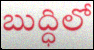
బుద్ధిలో